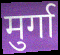
मुर्गा